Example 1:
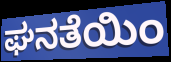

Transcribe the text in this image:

ಘನತೆಯಿಂ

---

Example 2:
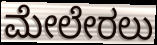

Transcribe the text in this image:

ಮೇಲೇರಲು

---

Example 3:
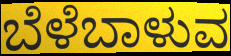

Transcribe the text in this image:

ಬೆಳೆಬಾಳುವ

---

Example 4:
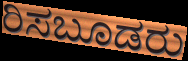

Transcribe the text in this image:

ರಿಸಬೂಡರು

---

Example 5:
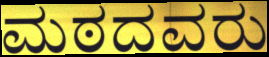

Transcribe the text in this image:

ಮಠದವರು